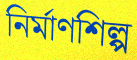
নির্মাণশিল্প